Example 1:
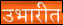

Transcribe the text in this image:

उभारीत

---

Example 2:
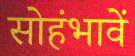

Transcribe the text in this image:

सोहंभावें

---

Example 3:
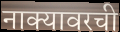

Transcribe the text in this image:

नाक्यावरची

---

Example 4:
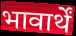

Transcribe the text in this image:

भावार्थें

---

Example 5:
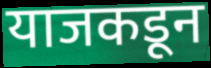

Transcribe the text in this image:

याजकडून